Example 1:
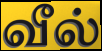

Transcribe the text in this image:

வீல்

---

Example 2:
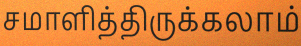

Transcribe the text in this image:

சமாளித்திருக்கலாம்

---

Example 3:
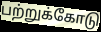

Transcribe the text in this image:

பற்றுக்கோடு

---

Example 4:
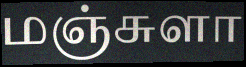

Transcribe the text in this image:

மஞ்சுளா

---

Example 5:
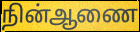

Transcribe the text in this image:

நின்ஆணை